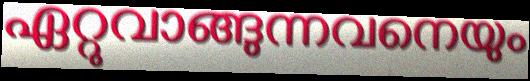
ഏറ്റുവാങ്ങുന്നവനെയും